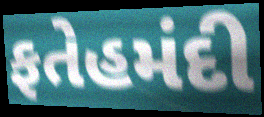
ફતેહમંદી